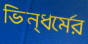
ভিন্‌ধর্মের